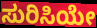
ಸುರಿಸಿಯೇ